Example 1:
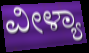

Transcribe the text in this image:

ವೀಳ್ಯಾ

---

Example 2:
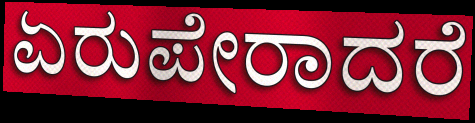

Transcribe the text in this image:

ಏರುಪೇರಾದರೆ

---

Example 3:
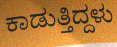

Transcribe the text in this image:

ಕಾಡುತ್ತಿದ್ದಳು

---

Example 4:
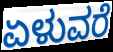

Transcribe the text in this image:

ಏಳುವರೆ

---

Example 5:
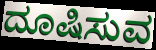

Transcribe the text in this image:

ದೂಷಿಸುವ